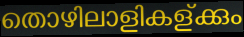
തൊഴിലാളികള്ക്കും